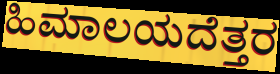
ಹಿಮಾಲಯದೆತ್ತರ